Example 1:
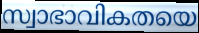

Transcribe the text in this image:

സ്വാഭാവികതയെ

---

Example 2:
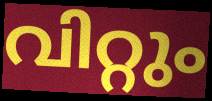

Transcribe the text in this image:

വിറ്റും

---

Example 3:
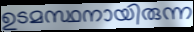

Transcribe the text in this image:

ഉടമസ്ഥനായിരുന്ന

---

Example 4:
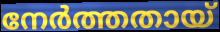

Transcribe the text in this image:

നേർത്തതായ്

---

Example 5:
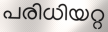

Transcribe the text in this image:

പരിധിയറ്റ